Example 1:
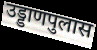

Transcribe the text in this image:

उड्डाणपुलास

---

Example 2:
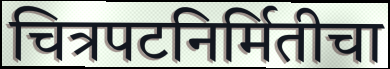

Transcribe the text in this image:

चित्रपटनिर्मितीचा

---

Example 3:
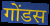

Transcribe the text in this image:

गोंडस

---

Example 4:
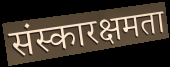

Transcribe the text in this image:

संस्कारक्षमता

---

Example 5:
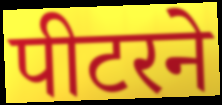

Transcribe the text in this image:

पीटरने